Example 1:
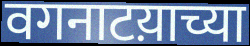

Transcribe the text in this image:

वगनाटय़ाच्या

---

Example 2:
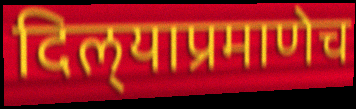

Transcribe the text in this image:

दिल्याप्रमाणेच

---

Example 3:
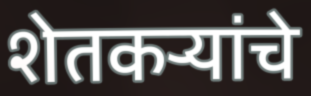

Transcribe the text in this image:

शेतकर्‍यांचे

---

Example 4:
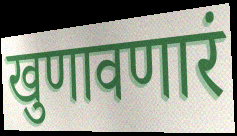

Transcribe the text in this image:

खुणावणारं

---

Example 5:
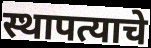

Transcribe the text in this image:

स्थापत्याचे